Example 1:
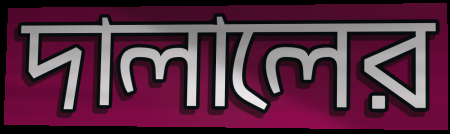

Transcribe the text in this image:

দালালের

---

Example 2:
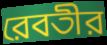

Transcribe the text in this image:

রেবতীর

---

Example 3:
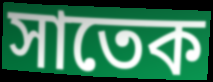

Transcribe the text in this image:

সাতেক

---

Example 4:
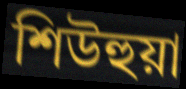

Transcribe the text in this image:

শিউহুয়া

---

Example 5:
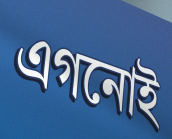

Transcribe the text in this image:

এগনোই